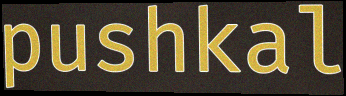
pushkal